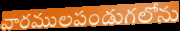
వారములపండుగలోను